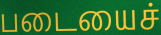
படையைச்